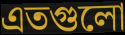
এতগুলো